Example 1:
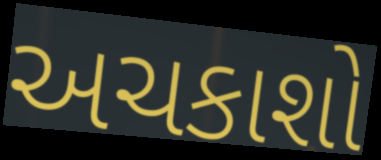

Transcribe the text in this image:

અચકાશો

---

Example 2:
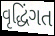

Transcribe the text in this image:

વૃદ્ધિંગત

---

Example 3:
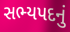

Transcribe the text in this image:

સભ્યપદનું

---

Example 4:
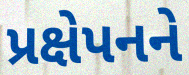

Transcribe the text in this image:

પ્રક્ષેપનને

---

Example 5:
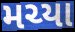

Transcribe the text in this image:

મચ્યા